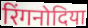
रिंगनोदिया